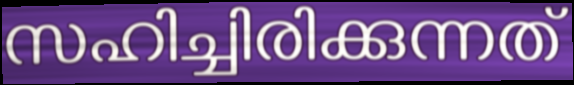
സഹിച്ചിരിക്കുന്നത്